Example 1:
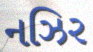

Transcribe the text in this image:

નઝિર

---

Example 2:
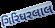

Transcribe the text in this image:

ગિરિધરલાલ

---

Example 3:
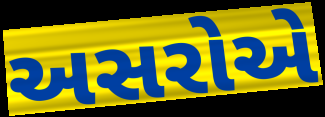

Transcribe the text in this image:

અસરોએ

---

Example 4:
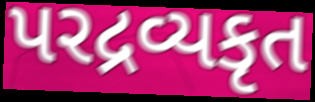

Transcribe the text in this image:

પરદ્રવ્યકૃત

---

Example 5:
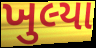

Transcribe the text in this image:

ખુલ્યા